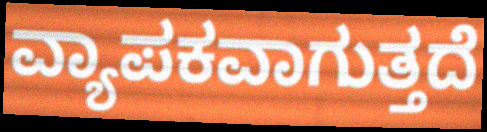
ವ್ಯಾಪಕವಾಗುತ್ತದೆ